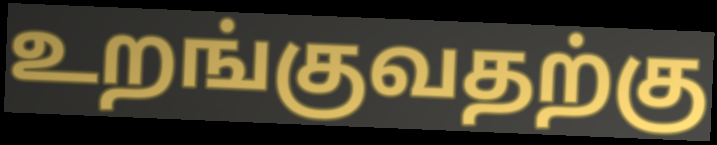
உறங்குவதற்கு